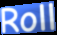
Roll